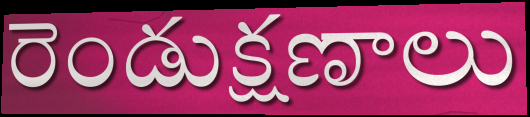
రెండుక్షణాలు